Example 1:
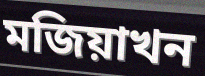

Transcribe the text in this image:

মজিয়াখন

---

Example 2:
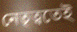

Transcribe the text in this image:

নেতৃত্বতেই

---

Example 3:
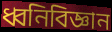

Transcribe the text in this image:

ধ্বনিবিজ্ঞান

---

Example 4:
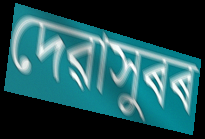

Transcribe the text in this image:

দেৱাসুৰৰ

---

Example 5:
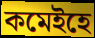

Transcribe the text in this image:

কমেইহে